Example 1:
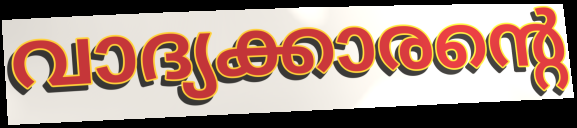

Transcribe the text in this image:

വാദ്യക്കാരന്റെ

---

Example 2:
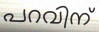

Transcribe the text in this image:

പറവിന്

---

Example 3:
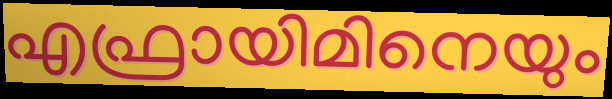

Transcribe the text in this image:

എഫ്രായിമിനെയും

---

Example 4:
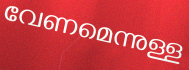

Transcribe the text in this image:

വേണമെന്നുള്ള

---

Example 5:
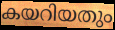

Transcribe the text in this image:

കയറിയതും